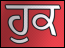
ਹੁਕ